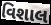
વિશાલ